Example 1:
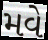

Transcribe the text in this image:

મવે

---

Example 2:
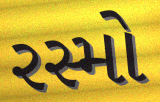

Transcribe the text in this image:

રસ્મો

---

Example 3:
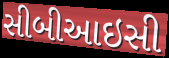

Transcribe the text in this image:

સીબીઆઇસી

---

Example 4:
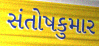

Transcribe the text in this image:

સંતોષકુમાર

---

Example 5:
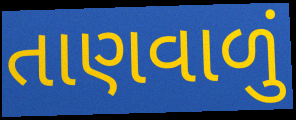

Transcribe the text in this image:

તાણવાળું